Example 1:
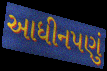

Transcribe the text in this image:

આધીનપણું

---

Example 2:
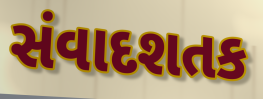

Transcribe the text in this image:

સંવાદશતક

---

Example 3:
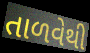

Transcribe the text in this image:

તાળવેથી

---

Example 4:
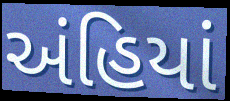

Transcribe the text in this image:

અંહિયાં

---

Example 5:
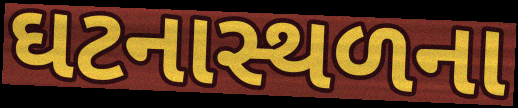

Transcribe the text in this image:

ઘટનાસ્થળના